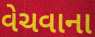
વેચવાના